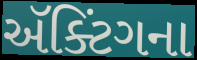
ઍક્ટિંગના